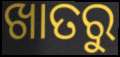
ଖାତରୁ